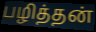
பழித்தன்